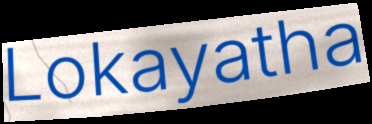
Lokayatha